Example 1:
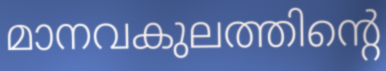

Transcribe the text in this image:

മാനവകുലത്തിന്റെ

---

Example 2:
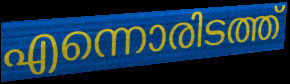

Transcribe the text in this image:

എന്നൊരിടത്ത്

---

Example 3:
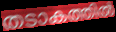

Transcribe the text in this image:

തടാകത്തിൽ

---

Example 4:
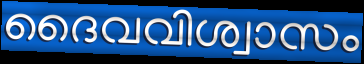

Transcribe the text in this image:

ദൈവവിശ്വാസം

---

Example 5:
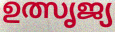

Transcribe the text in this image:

ഉത്സൃജ്യ